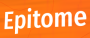
Epitome